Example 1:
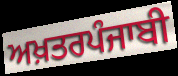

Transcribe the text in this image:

ਅਖ਼ਤਰਪੰਜਾਬੀ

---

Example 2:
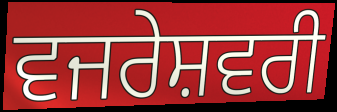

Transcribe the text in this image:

ਵਜਰੇਸ਼ਵਰੀ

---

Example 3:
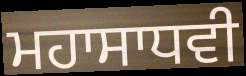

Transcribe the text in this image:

ਮਹਾਸਾਧਵੀ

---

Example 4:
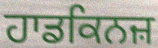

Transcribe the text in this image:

ਹਾਡਕਿਨਜ਼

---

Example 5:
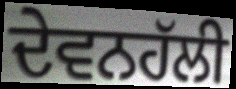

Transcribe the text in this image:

ਦੇਵਨਹੱਲੀ